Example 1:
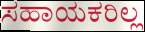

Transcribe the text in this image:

ಸಹಾಯಕರಿಲ್ಲ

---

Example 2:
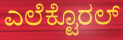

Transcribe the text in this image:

ಎಲೆಕ್ಟೊರಲ್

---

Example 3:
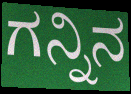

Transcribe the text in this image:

ಗನ್ನಿನ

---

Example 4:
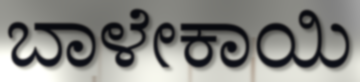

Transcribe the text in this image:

ಬಾಳೇಕಾಯಿ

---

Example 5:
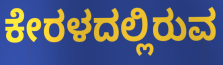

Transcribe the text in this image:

ಕೇರಳದಲ್ಲಿರುವ